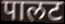
पालट